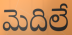
మెదిలే